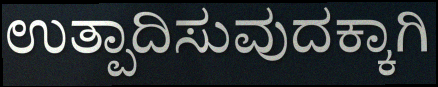
ಉತ್ಪಾದಿಸುವುದಕ್ಕಾಗಿ